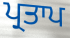
ਪ੍ਰਤਾਪ